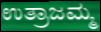
ಉತ್ರಾಜಮ್ಮ